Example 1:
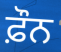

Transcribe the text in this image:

ਫ਼ੌਨ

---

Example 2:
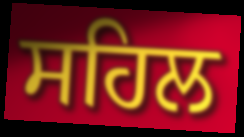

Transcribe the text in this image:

ਸਹਿਲ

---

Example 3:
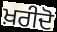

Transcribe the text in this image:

ਖ਼ਰੀਦੋ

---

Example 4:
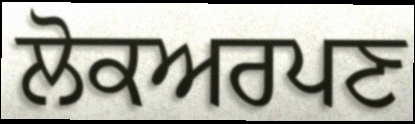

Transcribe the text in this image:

ਲੋਕਅਰਪਣ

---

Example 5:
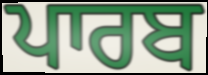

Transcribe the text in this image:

ਪਾਰਬ